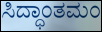
ಸಿದ್ಧಾಂತಮಂ